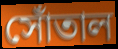
সোঁতাল